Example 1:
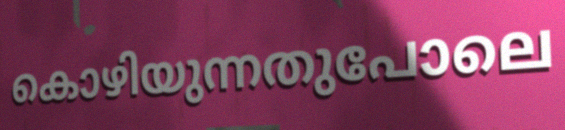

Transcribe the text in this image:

കൊഴിയുന്നതുപോലെ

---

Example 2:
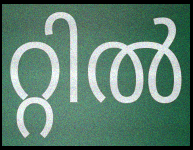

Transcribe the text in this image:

റ്റിൽ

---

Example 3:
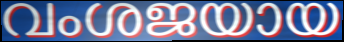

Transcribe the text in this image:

വംശജയായ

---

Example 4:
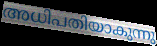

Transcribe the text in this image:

അധിപതിയാകുന്നു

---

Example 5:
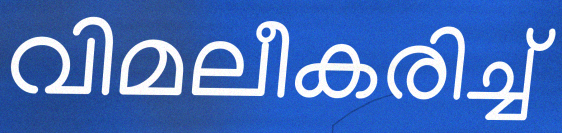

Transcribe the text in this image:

വിമലീകരിച്ച്